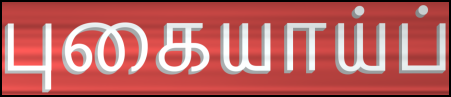
புகையாய்ப்